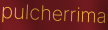
pulcherrima